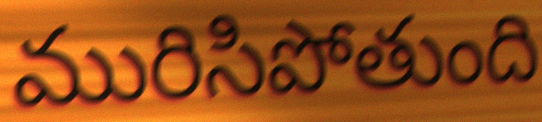
మురిసిపోతుంది